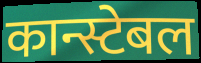
कान्स्टेबल